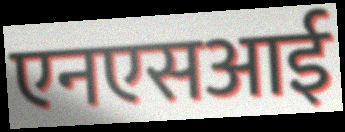
एनएसआई